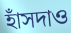
হাঁসদাও